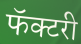
फॅक्टरी